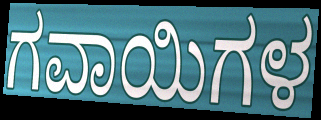
ಗವಾಯಿಗಳ